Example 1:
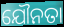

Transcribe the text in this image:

ଯୌନତା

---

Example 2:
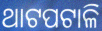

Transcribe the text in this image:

ଥାଟପଟାଳି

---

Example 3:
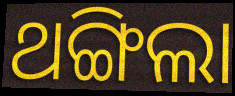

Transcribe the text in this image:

ଥଙ୍ଗିଲା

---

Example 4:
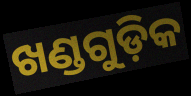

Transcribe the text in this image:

ଖଣ୍ଡଗୁଡ଼ିକ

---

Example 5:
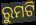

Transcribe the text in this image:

ରୁମଟି